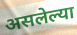
असलेल्या